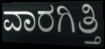
ವಾರಗಿತ್ತಿ